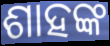
ଶାହଙ୍କ